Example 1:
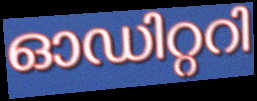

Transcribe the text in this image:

ഓഡിറ്ററി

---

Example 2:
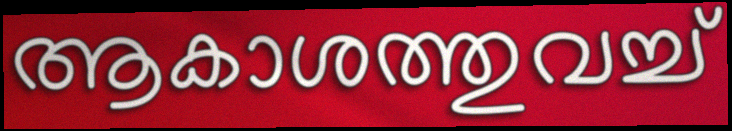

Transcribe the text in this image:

ആകാശത്തുവച്ച്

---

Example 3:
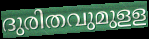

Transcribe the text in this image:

ദുരിതവുമുളള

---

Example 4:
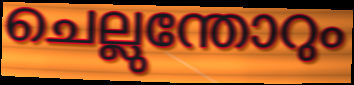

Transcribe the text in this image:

ചെല്ലുന്തോറും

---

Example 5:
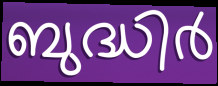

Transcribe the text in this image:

ബുദ്ധിർ